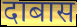
दाबास